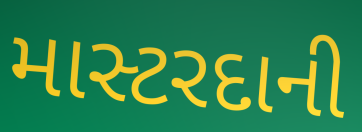
માસ્ટરદાની